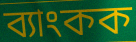
ব্যাংকক